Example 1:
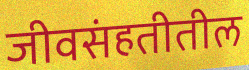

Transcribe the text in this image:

जीवसंहतीतील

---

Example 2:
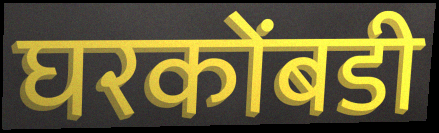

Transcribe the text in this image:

घरकोंबडी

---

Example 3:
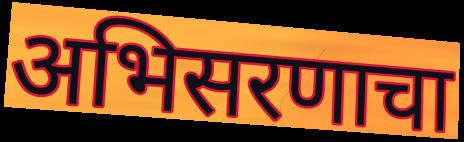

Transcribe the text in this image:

अभिसरणाचा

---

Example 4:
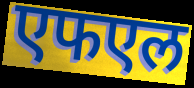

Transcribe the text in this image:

एफएल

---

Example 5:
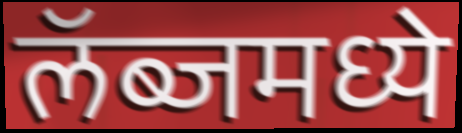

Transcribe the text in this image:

लॅब्जमध्ये